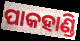
ପାକହାଣ୍ଡି